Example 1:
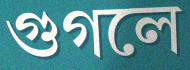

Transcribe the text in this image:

গুগলে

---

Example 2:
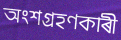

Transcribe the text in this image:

অংশগ্ৰহণকাৰী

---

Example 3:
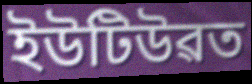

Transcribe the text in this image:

ইউটিউৱত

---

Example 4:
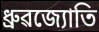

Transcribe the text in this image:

ধ্ৰুৱজ্যোতি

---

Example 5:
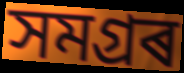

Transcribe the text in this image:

সমগ্ৰৰ